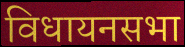
विधायनसभा